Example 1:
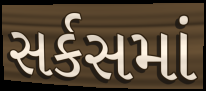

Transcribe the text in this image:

સર્કસમાં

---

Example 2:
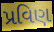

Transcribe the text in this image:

પ્રવિણ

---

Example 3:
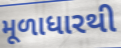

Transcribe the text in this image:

મૂળાધારથી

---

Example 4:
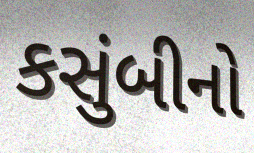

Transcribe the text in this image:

કસુંબીનો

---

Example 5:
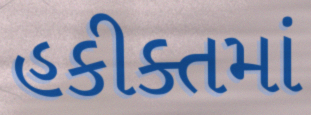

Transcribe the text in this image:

હકીક્તમાં